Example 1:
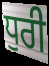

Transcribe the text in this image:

ਧੁਰੀ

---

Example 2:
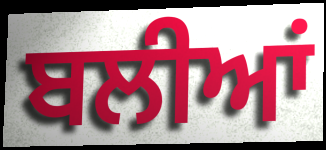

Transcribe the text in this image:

ਬਲੀਆਂ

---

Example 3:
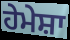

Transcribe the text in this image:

ਹੇਮੇਸ਼ਾ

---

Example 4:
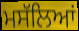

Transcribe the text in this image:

ਮਸੱਲਿਆਂ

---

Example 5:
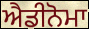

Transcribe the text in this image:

ਐਡੀਨੋਮਾ